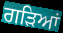
ਗੜਿਆਂ